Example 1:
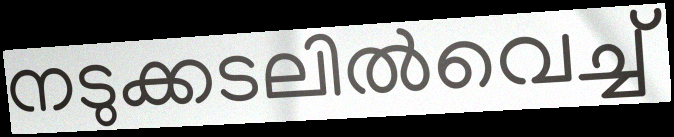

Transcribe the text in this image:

നടുക്കടലിൽവെച്ച്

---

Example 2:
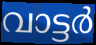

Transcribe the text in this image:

വാട്ടർ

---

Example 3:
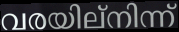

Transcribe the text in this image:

വരയില്നിന്ന്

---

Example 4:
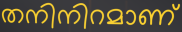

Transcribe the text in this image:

തനിനിറമാണ്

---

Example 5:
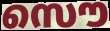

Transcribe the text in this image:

സൌ